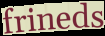
frineds